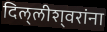
दिल्लीश्वरांना